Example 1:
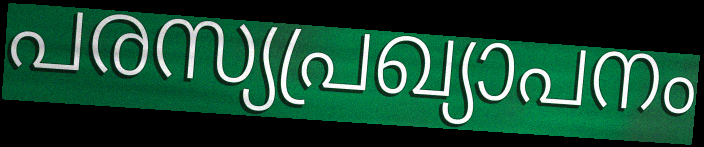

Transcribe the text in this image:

പരസ്യപ്രഖ്യാപനം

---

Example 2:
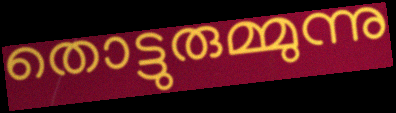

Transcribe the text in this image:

തൊട്ടുരുമ്മുന്നു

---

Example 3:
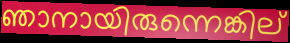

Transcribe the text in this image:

ഞാനായിരുന്നെങ്കില്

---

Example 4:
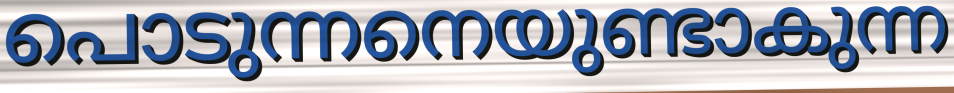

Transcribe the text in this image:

പൊടുന്നനെയുണ്ടാകുന്ന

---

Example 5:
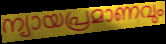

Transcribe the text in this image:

ന്യായപ്രമാണവും